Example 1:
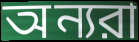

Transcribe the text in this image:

অন্যরা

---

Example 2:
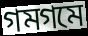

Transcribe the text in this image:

গমগমে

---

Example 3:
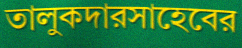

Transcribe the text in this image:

তালুকদারসাহেবের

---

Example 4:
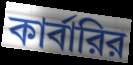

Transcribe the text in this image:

কার্বারির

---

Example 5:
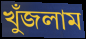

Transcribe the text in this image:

খুঁজলাম